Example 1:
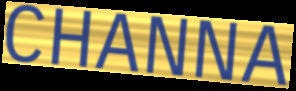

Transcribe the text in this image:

CHANNA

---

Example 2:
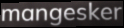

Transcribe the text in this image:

mangesker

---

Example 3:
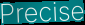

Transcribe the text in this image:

Precise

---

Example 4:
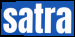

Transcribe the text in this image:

satra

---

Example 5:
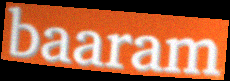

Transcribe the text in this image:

baaram